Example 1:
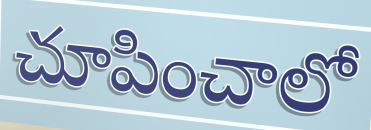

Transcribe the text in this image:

చూపించాలో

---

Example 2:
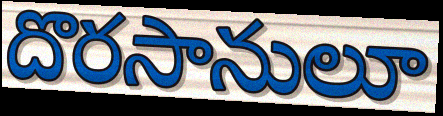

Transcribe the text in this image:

దొరసానులూ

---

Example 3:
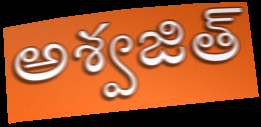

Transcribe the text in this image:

అశ్వజిత్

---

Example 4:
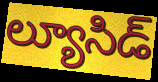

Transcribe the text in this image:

ల్యూసిడ్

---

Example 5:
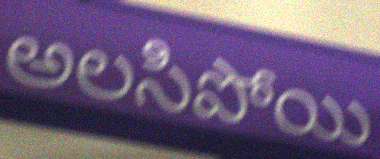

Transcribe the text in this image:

అలసిపోయి